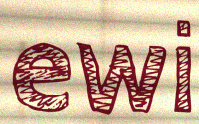
ewi